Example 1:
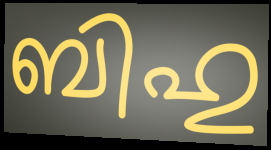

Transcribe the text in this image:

ബിഹു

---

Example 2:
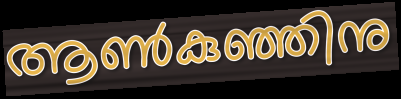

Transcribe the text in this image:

ആൺകുഞ്ഞിനു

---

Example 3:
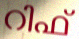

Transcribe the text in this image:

റിഫ്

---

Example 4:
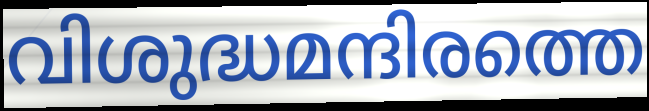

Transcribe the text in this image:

വിശുദ്ധമന്ദിരത്തെ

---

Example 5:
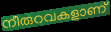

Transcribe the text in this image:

നീരുറവകളാണ്